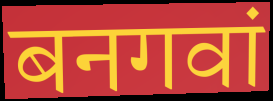
बनगवां